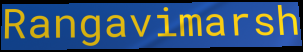
Rangavimarsh